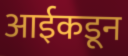
आईकडून